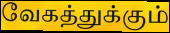
வேகத்துக்கும்